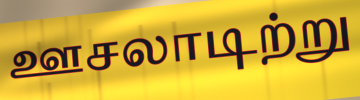
ஊசலாடிற்று